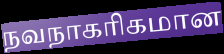
நவநாகரிகமான